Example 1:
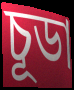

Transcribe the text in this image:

চূডা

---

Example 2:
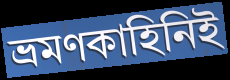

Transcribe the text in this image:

ভ্রমণকাহিনিই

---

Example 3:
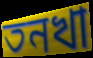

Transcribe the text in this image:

তনখা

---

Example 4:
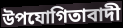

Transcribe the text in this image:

উপযোগিতাবাদী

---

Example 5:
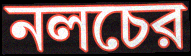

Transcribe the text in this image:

নলচের